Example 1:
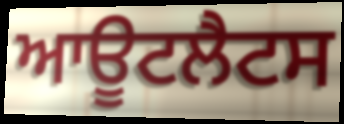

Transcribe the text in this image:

ਆਊਟਲੈਟਸ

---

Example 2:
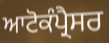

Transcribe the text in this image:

ਆਟੋਕੰਪ੍ਰੈਸਰ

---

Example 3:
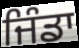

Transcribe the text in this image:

ਜਿੰਡਾ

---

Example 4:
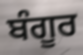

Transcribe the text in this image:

ਬੰਗੂਰ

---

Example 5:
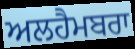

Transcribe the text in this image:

ਅਲਹੈਮਬਰਾ